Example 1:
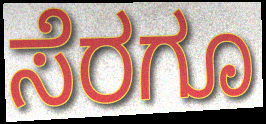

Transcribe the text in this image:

ಸೆರಗೂ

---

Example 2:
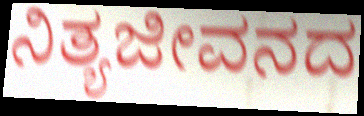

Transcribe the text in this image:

ನಿತ್ಯಜೀವನದ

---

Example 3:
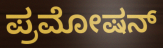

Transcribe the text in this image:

ಪ್ರಮೋಷನ್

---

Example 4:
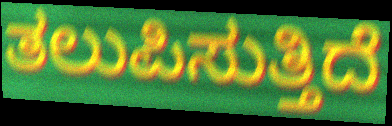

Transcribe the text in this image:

ತಲುಪಿಸುತ್ತಿದೆ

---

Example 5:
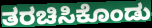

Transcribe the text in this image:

ತರಚಿಸಿಕೊಂಡು